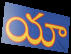
యా